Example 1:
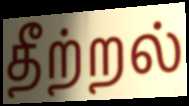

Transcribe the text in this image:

தீற்றல்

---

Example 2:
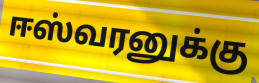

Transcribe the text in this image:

ஈஸ்வரனுக்கு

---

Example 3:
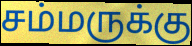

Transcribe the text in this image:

சம்மருக்கு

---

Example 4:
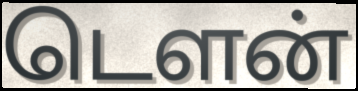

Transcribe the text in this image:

டௌன்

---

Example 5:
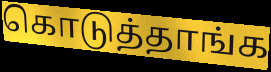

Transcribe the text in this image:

கொடுத்தாங்க